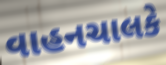
વાહનચાલકે